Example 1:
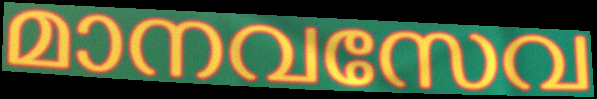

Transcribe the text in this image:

മാനവസേവ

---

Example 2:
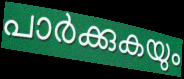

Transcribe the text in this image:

പാർക്കുകയും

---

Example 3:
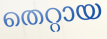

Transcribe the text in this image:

തെറ്റായ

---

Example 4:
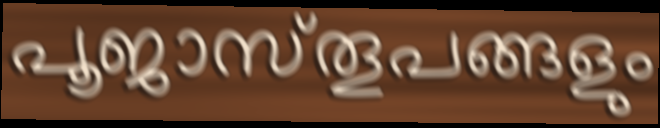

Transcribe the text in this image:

പൂജാസ്‌തൂപങ്ങളും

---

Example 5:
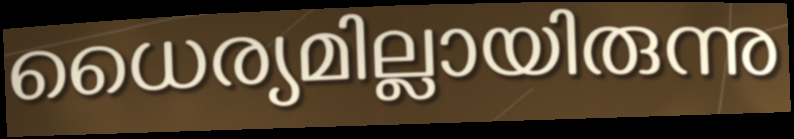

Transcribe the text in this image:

ധൈര്യമില്ലായിരുന്നു